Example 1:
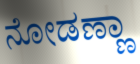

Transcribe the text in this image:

ನೋಡಣ್ಣಾ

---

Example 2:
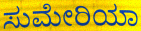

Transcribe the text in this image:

ಸುಮೇರಿಯಾ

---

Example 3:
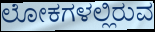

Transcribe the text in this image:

ಲೋಕಗಳಲ್ಲಿರುವ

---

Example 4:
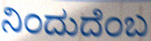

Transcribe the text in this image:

ನಿಂದುದೆಂಬ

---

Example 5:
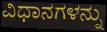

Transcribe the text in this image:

ವಿಧಾನಗಳನ್ನು